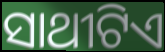
ସାଥୀଟିଏ